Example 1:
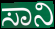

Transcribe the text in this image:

ಸಾನಿ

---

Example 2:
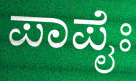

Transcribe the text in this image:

ಪಾಪೈಃ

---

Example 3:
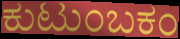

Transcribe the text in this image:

ಕುಟುಂಬಕಂ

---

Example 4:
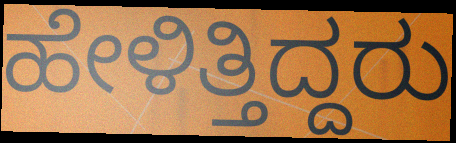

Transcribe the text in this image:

ಹೇಳಿತ್ತಿದ್ದರು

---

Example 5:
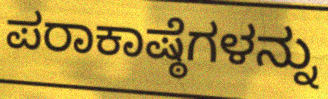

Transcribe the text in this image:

ಪರಾಕಾಷ್ಠೆಗಳನ್ನು